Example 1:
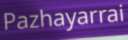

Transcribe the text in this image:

Pazhayarrai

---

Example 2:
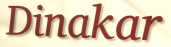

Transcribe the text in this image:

Dinakar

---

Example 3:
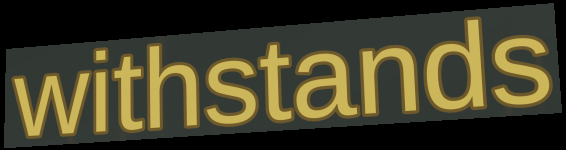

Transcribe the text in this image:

withstands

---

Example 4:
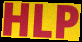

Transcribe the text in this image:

HLP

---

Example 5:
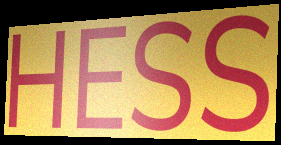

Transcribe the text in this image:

HESS